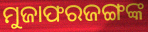
ମୁଜାଫରଜଙ୍ଗଙ୍କ